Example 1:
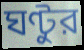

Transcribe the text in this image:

ঘণ্টুর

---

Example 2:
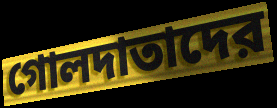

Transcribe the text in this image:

গোলদাতাদের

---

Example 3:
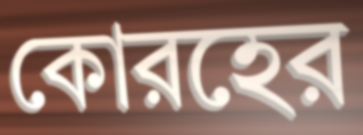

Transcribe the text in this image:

কোরহের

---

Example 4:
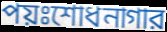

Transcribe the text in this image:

পয়ঃশোধনাগার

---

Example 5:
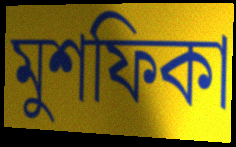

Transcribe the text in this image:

মুশফিকা